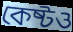
কেষ্টও